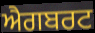
ਐਗਬਰਟ